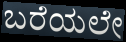
ಬರೆಯಲೇ